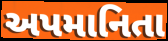
અપમાનિતા